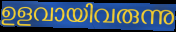
ഉളവായിവരുന്നു